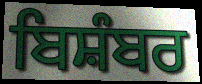
ਬਿਸ਼ੰਬਰ